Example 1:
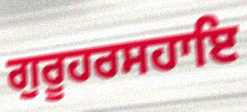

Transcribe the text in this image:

ਗੁਰੂਹਰਸਹਾਇ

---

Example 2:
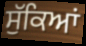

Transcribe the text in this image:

ਸੁੱਕਿਆਂ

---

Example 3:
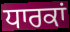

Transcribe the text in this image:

ਧਾਰਕਾਂ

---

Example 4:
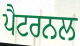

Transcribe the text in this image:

ਪੈਟਰਨਲ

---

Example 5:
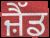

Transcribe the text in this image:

ਜ਼ੈੱਡ